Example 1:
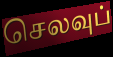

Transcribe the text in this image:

செலவுப்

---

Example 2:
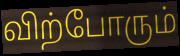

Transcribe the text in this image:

விற்போரும்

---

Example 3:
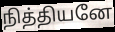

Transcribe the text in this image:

நித்தியனே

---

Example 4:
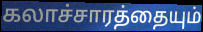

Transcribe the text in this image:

கலாச்சாரத்தையும்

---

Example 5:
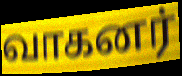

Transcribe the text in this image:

வாகனர்